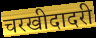
चरखीदादरी